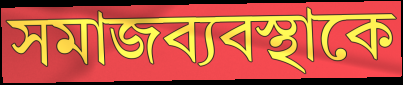
সমাজব্যবস্থাকে